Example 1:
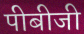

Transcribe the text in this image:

पीबीजी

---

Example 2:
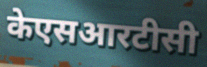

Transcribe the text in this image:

केएसआरटीसी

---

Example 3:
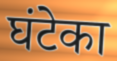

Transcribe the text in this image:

घंटेका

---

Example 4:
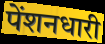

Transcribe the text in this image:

पेंशनधारी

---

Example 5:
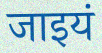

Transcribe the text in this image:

जाइयं